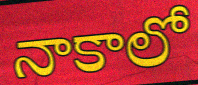
నాకాలో